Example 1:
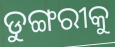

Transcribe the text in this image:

ଡୁଙ୍ଗରୀକୁ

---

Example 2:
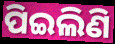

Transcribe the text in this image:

ପିଇଲିଣି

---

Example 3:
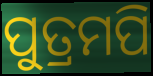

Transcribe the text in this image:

ପୁତ୍ରମପି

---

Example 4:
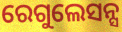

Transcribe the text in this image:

ରେଗୁଲେସନ୍ସ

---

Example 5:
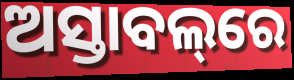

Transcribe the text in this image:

ଅସ୍ତାବଲ୍‌ରେ